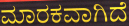
ಮಾರಕವಾಗಿದೆ